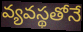
వ్యవస్థతోనే